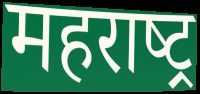
महराष्‍ट्र